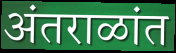
अंतराळांत